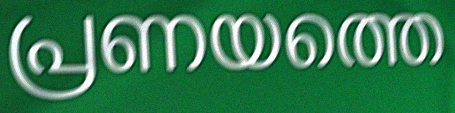
പ്രണയത്തെ